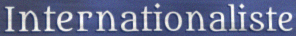
Internationaliste